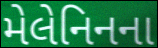
મેલેનિનના